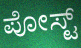
ಪೋಸ್ಟ್